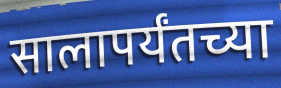
सालापर्यंतच्या